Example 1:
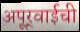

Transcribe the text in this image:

अपूर्वाईची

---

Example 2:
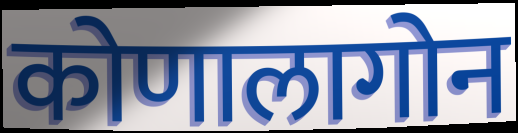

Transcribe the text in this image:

कोणालागोन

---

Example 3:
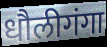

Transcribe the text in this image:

धौलीगंगा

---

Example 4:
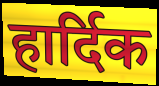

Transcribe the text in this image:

हार्दिक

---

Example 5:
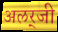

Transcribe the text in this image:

अलर्जी